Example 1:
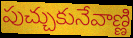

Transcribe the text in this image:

పుచ్చుకునేవాణ్ణి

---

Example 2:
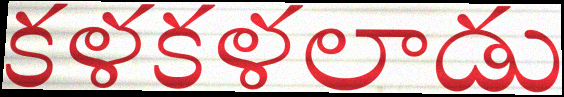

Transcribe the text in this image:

కళకళలాడు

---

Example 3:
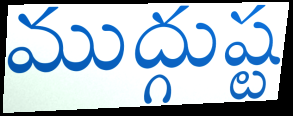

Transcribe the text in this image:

ముద్గుష్ట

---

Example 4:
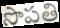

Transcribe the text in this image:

సొపతి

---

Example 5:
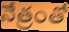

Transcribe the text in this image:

నేత్రంతో